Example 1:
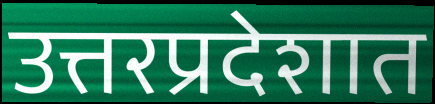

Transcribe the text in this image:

उत्तरप्रदेशात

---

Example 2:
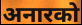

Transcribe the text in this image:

अनारको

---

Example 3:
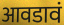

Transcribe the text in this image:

आवडावं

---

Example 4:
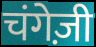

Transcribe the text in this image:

चंगेज़ी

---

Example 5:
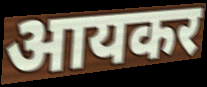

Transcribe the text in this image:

आयकर